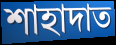
শাহাদাত